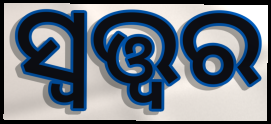
ସ୍ୱତ୍ତ୍ୱର